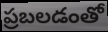
ప్రబలడంతో